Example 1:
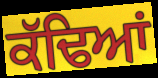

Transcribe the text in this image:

ਕੱਢਿਆਂ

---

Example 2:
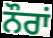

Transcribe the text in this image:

ਨੌਰਾਂ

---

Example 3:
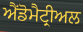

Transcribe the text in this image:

ਐਂਡੋਮੈਟ੍ਰੀਅਲ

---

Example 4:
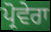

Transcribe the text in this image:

ਪ੍ਰੋਵੇਰਾ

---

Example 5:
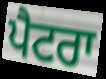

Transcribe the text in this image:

ਪੈਟਰਾ